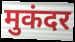
मुकंदर